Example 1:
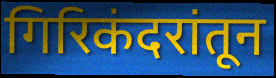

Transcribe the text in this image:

गिरिकंदरांतून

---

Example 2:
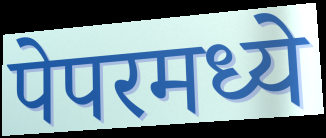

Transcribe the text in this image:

पेपरमध्ये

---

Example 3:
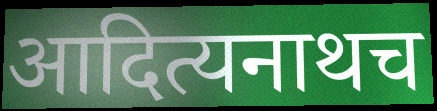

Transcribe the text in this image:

आदित्यनाथच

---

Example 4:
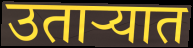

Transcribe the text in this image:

उताऱ्यात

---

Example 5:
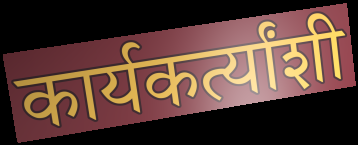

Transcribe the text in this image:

कार्यकर्त्यांशी